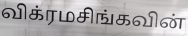
விக்ரமசிங்கவின்